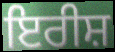
ਇਰੀਸ਼